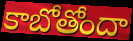
కాబోతోందా